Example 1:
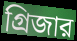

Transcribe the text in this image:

গ্রিজার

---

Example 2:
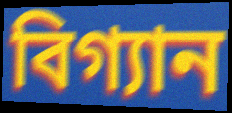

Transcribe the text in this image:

বিগ্যান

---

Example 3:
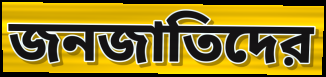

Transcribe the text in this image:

জনজাতিদের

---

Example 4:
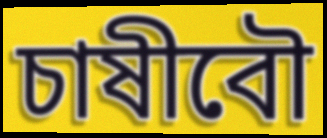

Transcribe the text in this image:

চাষীবৌ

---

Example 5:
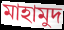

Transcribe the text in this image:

মাহামুদ